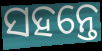
ସହନ୍ତେ